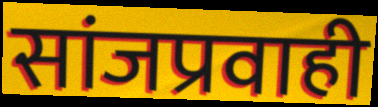
सांजप्रवाही